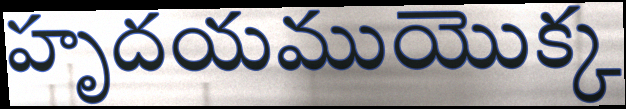
హృదయముయొక్క